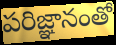
పరిజ్ఞానంతో